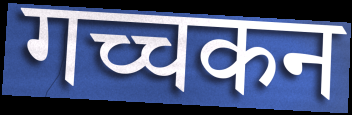
गच्चकन